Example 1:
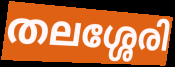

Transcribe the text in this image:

തലശ്ശേരി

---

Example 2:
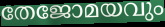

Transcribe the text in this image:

തേജോമയവും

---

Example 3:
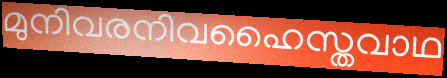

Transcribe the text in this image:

മുനിവരനിവഹൈസ്തവാഥ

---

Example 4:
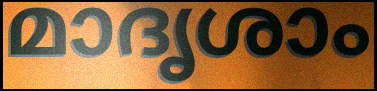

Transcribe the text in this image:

മാദൃശാം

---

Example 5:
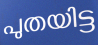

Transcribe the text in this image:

പുതയിട്ട